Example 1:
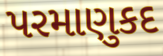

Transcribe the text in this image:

પરમાણુકદ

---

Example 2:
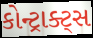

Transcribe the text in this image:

કોન્ટ્રાક્ટ્સ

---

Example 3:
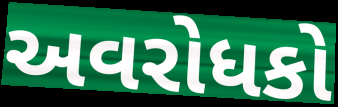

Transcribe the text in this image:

અવરોધકો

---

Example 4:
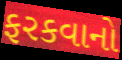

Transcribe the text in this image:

ફરકવાનો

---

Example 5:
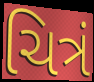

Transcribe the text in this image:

ચિત્રં